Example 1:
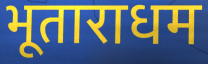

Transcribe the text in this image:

भूताराधम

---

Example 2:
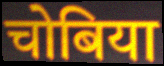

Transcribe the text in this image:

चोबिया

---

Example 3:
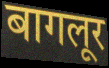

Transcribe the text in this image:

बागलूर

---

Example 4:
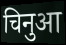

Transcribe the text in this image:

चिनुआ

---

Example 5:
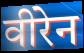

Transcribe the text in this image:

वीरेन